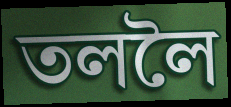
তললৈ